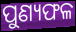
ପୁଣ୍ୟଫଳ